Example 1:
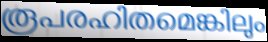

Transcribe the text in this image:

രൂപരഹിതമെങ്കിലും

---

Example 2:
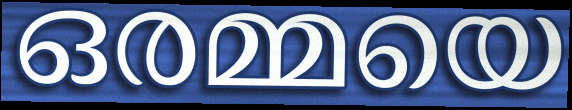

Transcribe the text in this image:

ഒരമ്മയെ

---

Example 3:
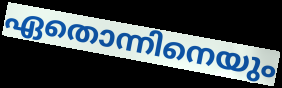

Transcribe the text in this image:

ഏതൊന്നിനെയും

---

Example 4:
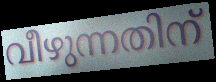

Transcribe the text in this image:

വീഴുന്നതിന്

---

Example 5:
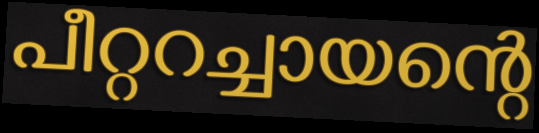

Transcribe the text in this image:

പീറ്ററച്ചായന്റെ